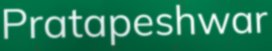
Pratapeshwar